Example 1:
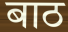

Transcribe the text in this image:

बाठ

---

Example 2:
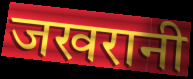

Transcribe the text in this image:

जखरानी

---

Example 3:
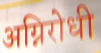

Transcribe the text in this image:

अग्निरोधी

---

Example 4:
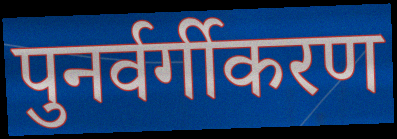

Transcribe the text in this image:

पुनर्वर्गीकरण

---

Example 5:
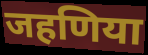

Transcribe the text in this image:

जहणिया